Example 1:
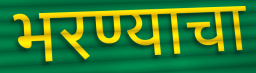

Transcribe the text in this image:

भरण्याचा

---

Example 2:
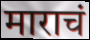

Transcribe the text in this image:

माराचं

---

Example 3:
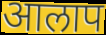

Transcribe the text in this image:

आलाप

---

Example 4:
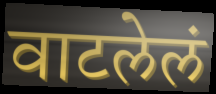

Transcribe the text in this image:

वाटलेलं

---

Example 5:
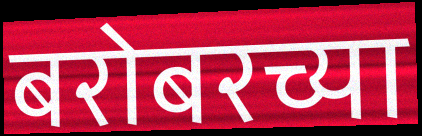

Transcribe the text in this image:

बरोबरच्या